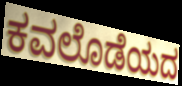
ಕವಲೊಡೆಯದ